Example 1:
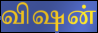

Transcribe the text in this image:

விஷன்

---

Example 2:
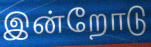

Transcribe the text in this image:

இன்றோடு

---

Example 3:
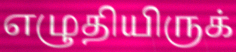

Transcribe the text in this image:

எழுதியிருக்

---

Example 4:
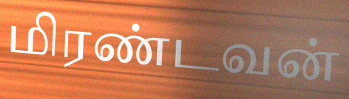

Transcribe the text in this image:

மிரண்டவன்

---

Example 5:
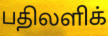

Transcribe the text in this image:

பதிலளிக்